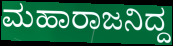
ಮಹಾರಾಜನಿದ್ದ